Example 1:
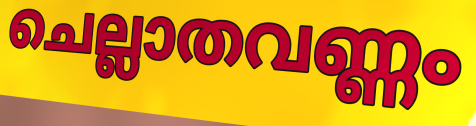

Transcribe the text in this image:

ചെല്ലാതവണ്ണം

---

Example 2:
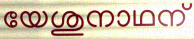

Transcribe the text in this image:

യേശുനാഥന്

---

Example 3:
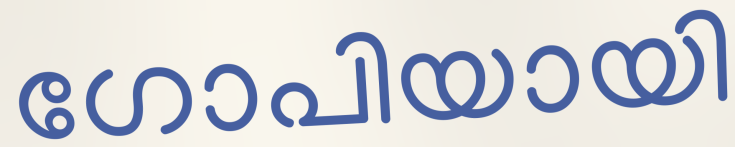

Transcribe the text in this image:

ഗോപിയായി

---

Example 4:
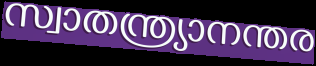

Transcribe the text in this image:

സ്വാതന്ത്ര്യാനന്തര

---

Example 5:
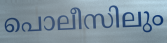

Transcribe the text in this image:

പൊലീസിലും